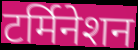
टर्मिनेशन